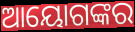
ଆୟୋଗଙ୍କର